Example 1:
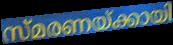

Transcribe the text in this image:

സ്മരണയ്ക്കായി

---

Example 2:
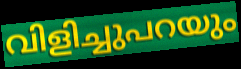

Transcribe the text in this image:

വിളിച്ചുപറയും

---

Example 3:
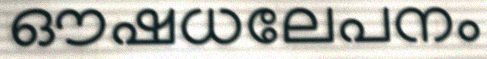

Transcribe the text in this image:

ഔഷധലേപനം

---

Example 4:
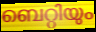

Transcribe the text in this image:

ബെറ്റിയും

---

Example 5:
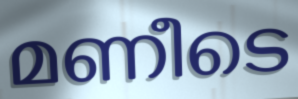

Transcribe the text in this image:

മണീടെ